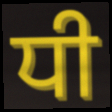
ਧੀ